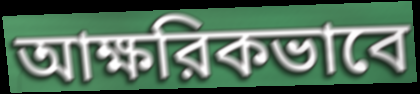
আক্ষরিকভাবে